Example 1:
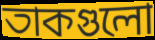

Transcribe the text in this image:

তাকগুলো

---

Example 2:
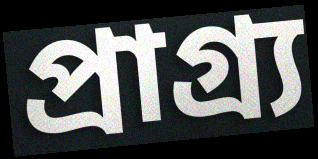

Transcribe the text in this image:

প্রাগ্র্য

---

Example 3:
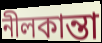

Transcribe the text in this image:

নীলকান্তা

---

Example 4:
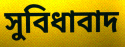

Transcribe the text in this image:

সুবিধাবাদ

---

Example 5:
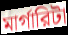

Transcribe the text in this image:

মার্গারিটা